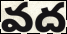
వద